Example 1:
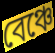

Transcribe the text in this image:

বেঞ্চে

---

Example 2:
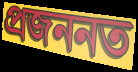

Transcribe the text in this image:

প্ৰজননত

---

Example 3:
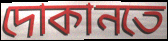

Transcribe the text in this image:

দোকানতে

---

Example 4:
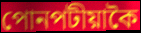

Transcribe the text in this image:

পোনপটীয়াকৈ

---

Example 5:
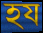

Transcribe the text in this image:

হয